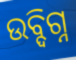
ଉବ୍ଦିଗ୍ନ